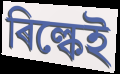
ৰিল্কেই